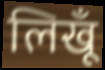
लिखूँ